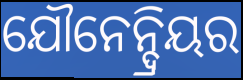
ଯୌନେନ୍ଦ୍ରିୟର